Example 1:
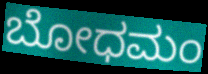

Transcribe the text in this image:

ಬೋಧಮಂ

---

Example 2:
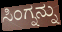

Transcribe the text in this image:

ಸಿಂಗ್ನನ್ನು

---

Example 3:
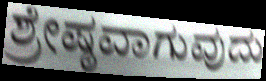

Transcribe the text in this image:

ಶ್ರೇಷ್ಠವಾಗುವುದು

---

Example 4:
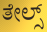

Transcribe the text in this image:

ತೇಲ್ಸ್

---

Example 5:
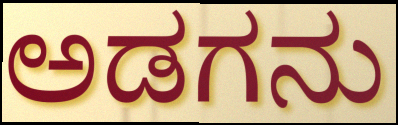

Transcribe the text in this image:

ಅಡಗನು